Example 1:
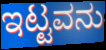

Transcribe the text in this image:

ಇಟ್ಟವನು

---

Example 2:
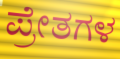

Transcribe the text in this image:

ಪ್ರೇತಗಳ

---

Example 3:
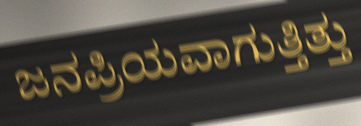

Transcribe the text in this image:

ಜನಪ್ರಿಯವಾಗುತ್ತಿತ್ತು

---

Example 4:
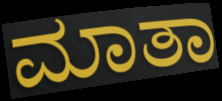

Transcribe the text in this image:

ಮಾತಾ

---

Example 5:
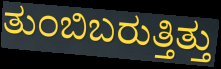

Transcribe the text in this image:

ತುಂಬಿಬರುತ್ತಿತ್ತು